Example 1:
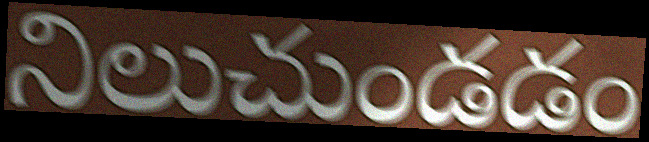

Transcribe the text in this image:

నిలుచుండడం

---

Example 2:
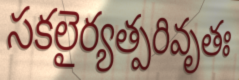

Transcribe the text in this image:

సకలైర్యత్పరివృతః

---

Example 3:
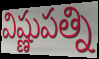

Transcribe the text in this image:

విష్ణుపత్ని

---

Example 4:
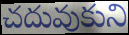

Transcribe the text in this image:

చదువుకుని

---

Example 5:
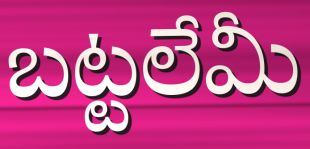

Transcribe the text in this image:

బట్టలేమీ